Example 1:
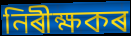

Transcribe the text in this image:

নিৰীক্ষকৰ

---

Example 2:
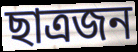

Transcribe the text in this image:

ছাত্ৰজন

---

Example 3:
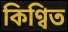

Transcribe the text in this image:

কিণ্বিত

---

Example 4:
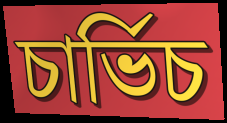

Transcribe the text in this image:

চাৰ্ভিচ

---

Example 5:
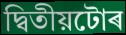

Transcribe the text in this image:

দ্বিতীয়টোৰ